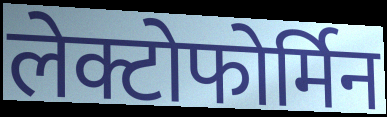
लेक्टोफोर्मिन